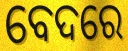
ବେଦରେ